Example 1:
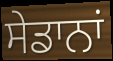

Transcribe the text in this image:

ਸੇਡਾਨਾਂ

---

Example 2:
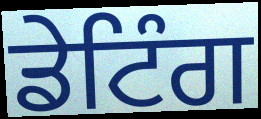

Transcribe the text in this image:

ਡੇਟਿੰਗ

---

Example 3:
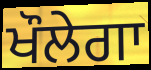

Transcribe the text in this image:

ਖੌਲੇਗਾ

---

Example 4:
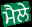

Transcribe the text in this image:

ਮੈਲੇ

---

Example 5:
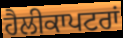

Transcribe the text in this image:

ਹੈਲੀਕਾਪਟਰਾਂ